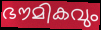
ഭൗമികവും